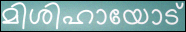
മിശിഹായോട്